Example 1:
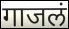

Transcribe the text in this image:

गाजलं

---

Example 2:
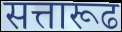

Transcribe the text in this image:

सत्तारूढ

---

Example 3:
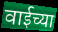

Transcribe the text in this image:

वाईच्या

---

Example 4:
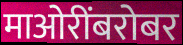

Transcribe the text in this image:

माओरींबरोबर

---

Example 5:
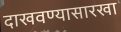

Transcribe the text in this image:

दाखवण्यासारखा